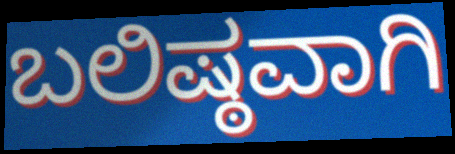
ಬಲಿಷ್ಠವಾಗಿ